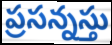
ప్రసన్నస్తు